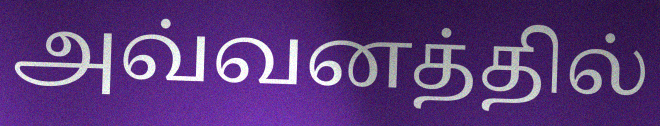
அவ்வனத்தில்